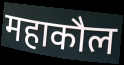
महाकौल